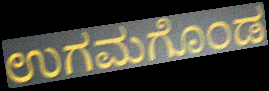
ಉಗಮಗೊಂಡ